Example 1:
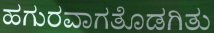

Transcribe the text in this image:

ಹಗುರವಾಗತೊಡಗಿತು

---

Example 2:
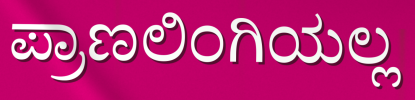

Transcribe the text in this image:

ಪ್ರಾಣಲಿಂಗಿಯಲ್ಲ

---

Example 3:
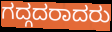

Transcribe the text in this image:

ಗದ್ಗದರಾದರು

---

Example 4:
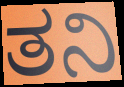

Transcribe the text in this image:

ತನಿ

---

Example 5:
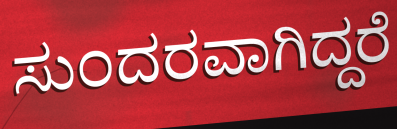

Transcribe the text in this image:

ಸುಂದರವಾಗಿದ್ದರೆ